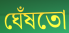
ঘেঁষতো